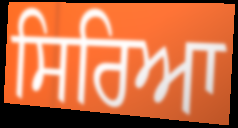
ਸਿਰਿਆ